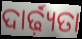
ଦାର୍ଢ଼୍ୟତା